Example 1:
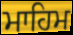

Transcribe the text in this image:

ਮਾਹਿਮ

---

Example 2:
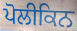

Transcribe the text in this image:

ਪੋਲੀਕਿਨ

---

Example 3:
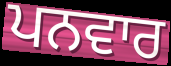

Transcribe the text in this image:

ਪਨਵਾਰ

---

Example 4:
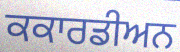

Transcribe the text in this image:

ਕਕਾਰਡੀਅਨ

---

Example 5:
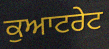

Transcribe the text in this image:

ਕੁਆਟਰੇਟ